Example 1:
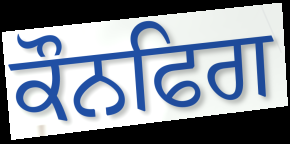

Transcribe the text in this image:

ਕੌਨਫਿਗ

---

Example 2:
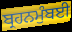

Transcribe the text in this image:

ਬ੍ਰਹਨਮੁੰਬਈ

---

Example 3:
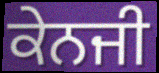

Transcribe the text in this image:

ਕੇਨਜੀ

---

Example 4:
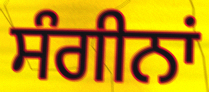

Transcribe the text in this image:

ਸੰਗੀਨਾਂ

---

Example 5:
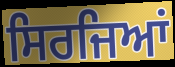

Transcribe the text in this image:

ਸਿਰਜਿਆਂ